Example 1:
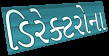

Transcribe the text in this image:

ડિરેક્ટરોના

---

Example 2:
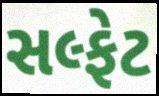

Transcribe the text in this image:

સલ્ફેટ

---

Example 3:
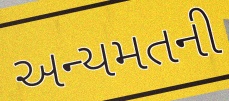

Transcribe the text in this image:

અન્યમતની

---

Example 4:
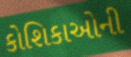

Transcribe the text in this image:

કોશિકાઓની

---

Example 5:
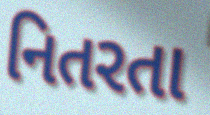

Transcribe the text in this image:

નિતરતા